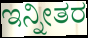
ಇನ್ನೀತರ